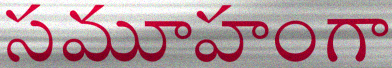
సమూహంగా